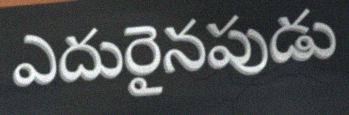
ఎదురైనపుడు